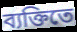
ব্যক্তিতে